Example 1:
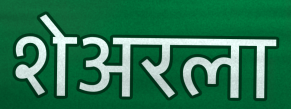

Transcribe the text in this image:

शेअरला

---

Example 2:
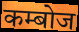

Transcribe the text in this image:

कम्बोज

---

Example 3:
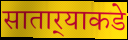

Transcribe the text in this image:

सातार्याकडे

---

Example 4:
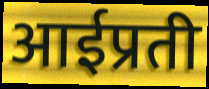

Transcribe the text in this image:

आईप्रती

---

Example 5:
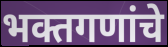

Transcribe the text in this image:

भक्तगणांचे